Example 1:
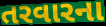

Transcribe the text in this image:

તરવારના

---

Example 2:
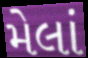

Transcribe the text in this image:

મેલાં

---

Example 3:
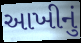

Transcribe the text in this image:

આખીનું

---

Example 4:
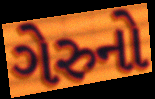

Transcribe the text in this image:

ગેરુનો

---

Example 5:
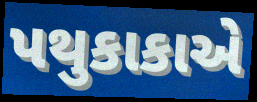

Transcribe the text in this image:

પથુકાકાએ